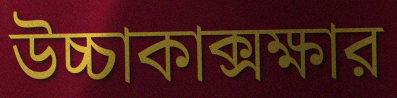
উচ্চাকাক্সক্ষার